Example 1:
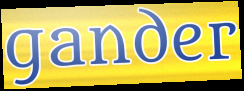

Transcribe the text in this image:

gander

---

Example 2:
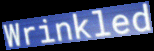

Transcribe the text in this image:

Wrinkled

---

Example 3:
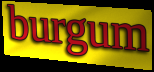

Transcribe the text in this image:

burgum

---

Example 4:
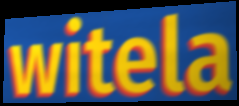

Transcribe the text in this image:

witela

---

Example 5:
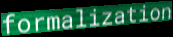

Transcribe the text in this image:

formalization